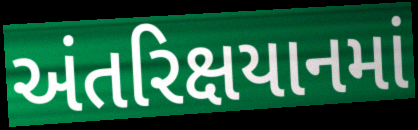
અંતરિક્ષયાનમાં